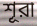
শূরা